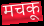
मचकू